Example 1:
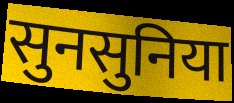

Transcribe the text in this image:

सुनसुनिया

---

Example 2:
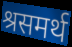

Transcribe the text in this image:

श्रसमर्थ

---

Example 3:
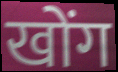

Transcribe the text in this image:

खोंग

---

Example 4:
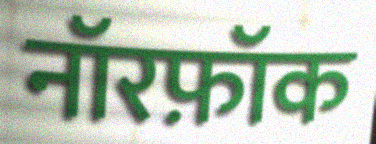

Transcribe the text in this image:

नॉरफ़ॉक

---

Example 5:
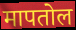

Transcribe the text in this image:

मापतोल